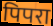
पिपरा